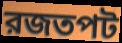
রজতপট